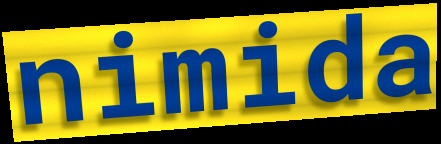
nimida